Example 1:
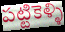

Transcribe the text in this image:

పట్టికెళ్ళి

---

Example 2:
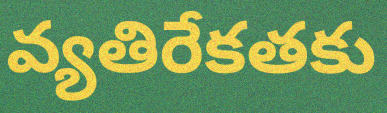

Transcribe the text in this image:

వ్యతిరేకతకు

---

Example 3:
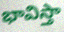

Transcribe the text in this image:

భావిస్తా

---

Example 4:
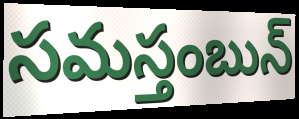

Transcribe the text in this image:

సమస్తంబున్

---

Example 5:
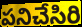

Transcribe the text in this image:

పనిచేసిరి